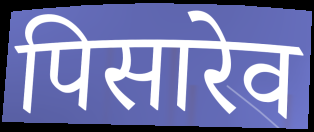
पिसारेव